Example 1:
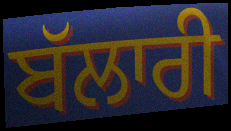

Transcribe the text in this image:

ਬੱਲਾਰੀ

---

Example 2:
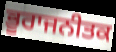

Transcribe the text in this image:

ਭੂਰਾਜਨੀਤਕ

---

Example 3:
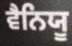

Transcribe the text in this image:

ਵੈਨਿਯੂ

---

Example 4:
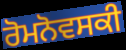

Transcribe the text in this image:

ਰੋਮਨੋਵਸਕੀ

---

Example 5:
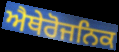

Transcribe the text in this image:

ਐਥੇਰੋਜਨਿਕ